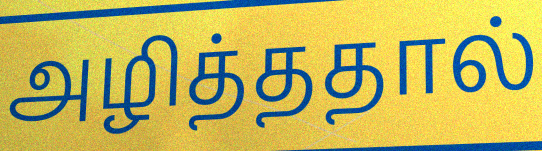
அழித்ததால்